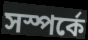
সস্পর্কে